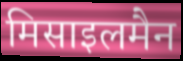
मिसाइलमैन